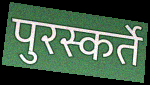
पुरस्कर्ते